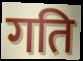
गति